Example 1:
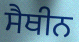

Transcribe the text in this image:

ਸੈਥੀਨ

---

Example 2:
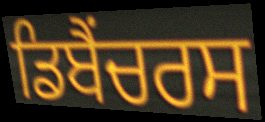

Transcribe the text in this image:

ਡਿਬੈਂਚਰਸ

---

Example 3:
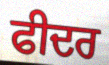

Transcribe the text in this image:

ਫੀਦਰ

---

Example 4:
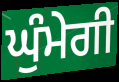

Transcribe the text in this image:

ਘੁੰਮੇਗੀ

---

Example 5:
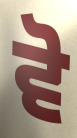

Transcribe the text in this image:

ਵੋ